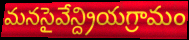
మనసైవేన్ద్రియగ్రామం